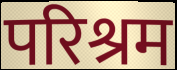
परिश्रम